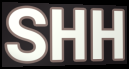
SHH